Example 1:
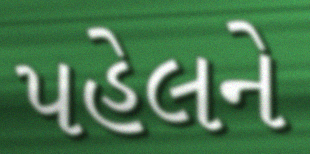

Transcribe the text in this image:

પહેલને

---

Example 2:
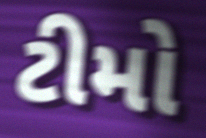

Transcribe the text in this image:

ટીમો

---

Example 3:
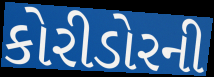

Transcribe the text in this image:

કોરીડોરની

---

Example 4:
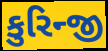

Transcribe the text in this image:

કુરિન્જી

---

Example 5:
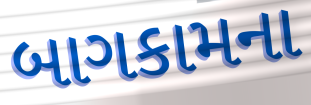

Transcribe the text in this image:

બાગકામના